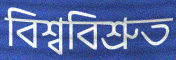
বিশ্ববিশ্ৰুত